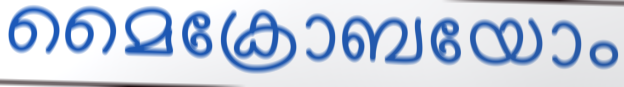
മൈക്രോബയോം